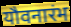
यौवनारंभ